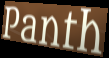
Panth